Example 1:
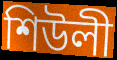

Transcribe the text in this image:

শিউলী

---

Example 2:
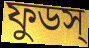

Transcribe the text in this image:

ফুডস্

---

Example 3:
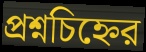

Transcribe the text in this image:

প্রশ্নচিহ্নের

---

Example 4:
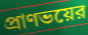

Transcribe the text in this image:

প্রাণভয়ের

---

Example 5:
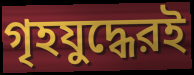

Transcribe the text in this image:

গৃহযুদ্ধেরই